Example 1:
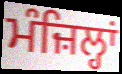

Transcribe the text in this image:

ਮੰਜ਼ਿਲ੍ਹਾਂ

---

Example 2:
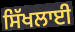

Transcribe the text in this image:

ਸਿੱਖਲਾਈ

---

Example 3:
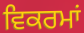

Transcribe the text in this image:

ਵਿਕਰਮਾਂ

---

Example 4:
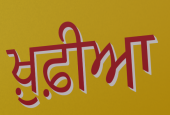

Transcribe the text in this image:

ਖ਼ੁਫ਼ੀਆ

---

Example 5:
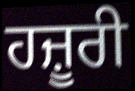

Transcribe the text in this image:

ਹਜ਼ੂਰੀ